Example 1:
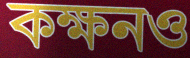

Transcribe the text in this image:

কক্ষনও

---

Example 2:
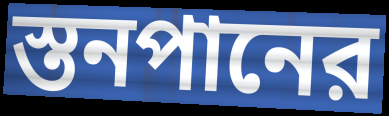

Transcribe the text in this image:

স্তনপানের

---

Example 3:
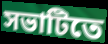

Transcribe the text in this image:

সভাটিতে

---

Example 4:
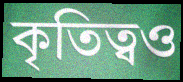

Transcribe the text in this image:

কৃতিত্বও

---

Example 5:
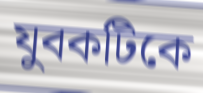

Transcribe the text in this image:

যুবকটিকে